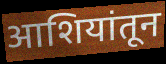
आशियांतून